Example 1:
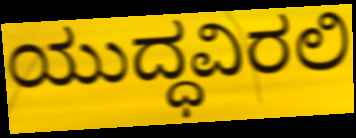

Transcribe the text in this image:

ಯುದ್ಧವಿರಲಿ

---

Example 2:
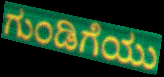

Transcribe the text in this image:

ಗುಂಡಿಗೆಯು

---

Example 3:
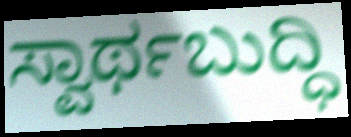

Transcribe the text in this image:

ಸ್ವಾರ್ಥಬುದ್ಧಿ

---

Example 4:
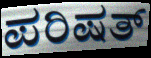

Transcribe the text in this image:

ಪರಿಷತ್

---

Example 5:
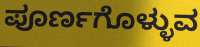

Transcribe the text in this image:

ಪೂರ್ಣಗೊಳ್ಳುವ